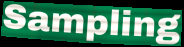
Sampling